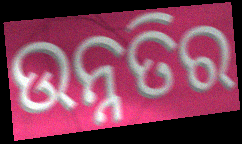
ଉନ୍ନତିର